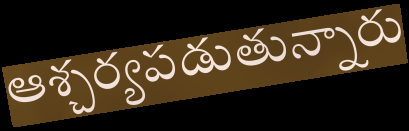
ఆశ్చర్యపడుతున్నారు